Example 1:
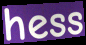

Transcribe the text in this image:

hess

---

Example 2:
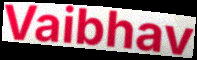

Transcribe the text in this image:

Vaibhav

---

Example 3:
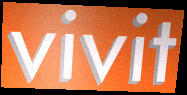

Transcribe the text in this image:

vivit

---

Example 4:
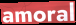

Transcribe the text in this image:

amoral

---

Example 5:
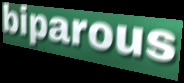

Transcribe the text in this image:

biparous